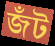
জঁট